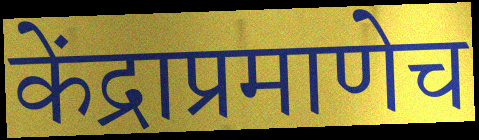
केंद्राप्रमाणेच